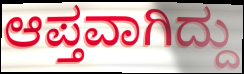
ಆಪ್ತವಾಗಿದ್ದು